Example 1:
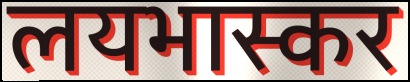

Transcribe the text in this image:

लयभास्कर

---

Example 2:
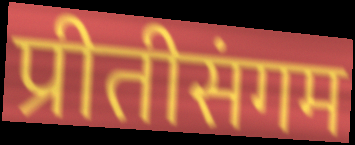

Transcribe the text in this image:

प्रीतीसंगम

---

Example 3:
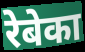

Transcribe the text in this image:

रेबेका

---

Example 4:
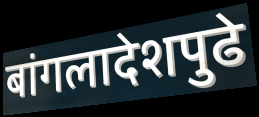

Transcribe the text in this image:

बांगलादेशपुढे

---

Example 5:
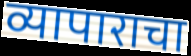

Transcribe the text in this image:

व्यापाराचा